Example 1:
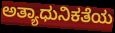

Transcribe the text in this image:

ಅತ್ಯಾಧುನಿಕತೆಯ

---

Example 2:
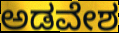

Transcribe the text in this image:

ಅಡವೇಶ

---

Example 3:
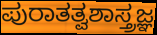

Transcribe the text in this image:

ಪುರಾತತ್ವಶಾಸ್ತ್ರಜ್ಞ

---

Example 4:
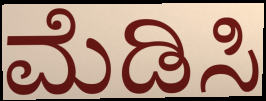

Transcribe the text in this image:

ಮೆಡಿಸಿ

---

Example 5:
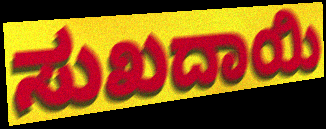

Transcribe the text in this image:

ಸುಖದಾಯಿ